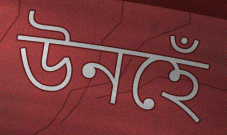
উনহেঁ